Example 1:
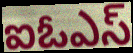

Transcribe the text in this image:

ఐఓఎస్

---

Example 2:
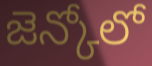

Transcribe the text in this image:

జెన్కోలో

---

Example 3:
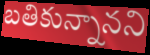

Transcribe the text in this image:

బతికున్నానని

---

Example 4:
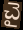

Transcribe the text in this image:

చై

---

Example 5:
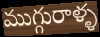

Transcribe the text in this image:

ముగ్గురాళ్ళ